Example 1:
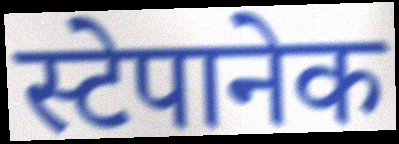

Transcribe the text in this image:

स्टेपानेक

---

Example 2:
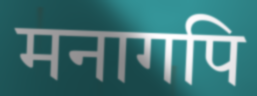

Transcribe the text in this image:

मनागपि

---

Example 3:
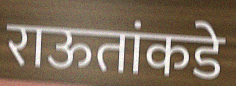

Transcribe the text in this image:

राऊतांकडे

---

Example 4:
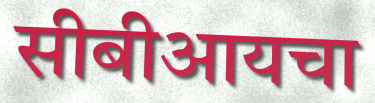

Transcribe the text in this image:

सीबीआयचा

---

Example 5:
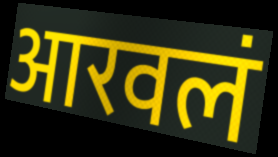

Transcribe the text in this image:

आरवलं